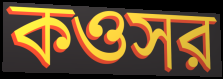
কওসর